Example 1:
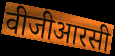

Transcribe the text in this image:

वीजीआरसी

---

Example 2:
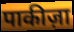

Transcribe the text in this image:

पाकीज़ा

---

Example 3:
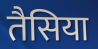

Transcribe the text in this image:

तैसिया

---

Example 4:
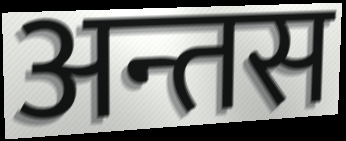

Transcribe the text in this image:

अन्तस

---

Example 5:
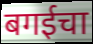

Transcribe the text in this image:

बगईचा